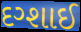
દગ્શાઈ